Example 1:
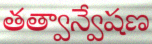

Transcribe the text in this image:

తత్వాన్వేషణ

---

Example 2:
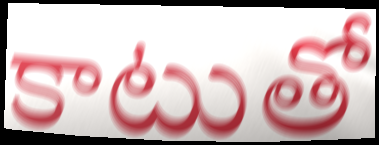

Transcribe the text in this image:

కాటుతో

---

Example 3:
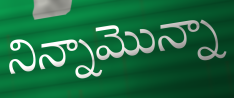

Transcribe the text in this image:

నిన్నామొన్నా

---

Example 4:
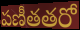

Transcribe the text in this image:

పణీతతరో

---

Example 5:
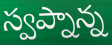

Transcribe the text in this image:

స్వప్నాన్న